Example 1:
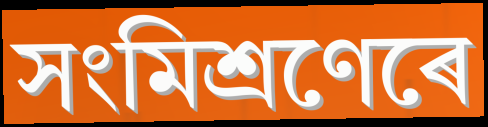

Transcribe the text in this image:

সংমিশ্ৰণেৰে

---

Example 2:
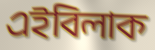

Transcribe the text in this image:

এইবিলাক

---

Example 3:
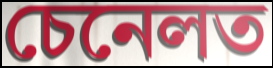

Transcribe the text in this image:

চেনেলত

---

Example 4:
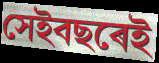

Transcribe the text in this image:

সেইবছৰেই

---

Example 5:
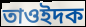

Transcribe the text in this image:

তাওইদক